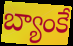
బ్యాంకే